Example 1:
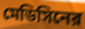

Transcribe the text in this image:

মেডিসিনের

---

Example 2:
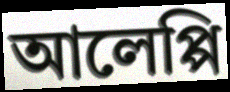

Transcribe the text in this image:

আলেপ্পি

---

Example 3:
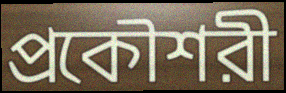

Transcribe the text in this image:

প্রকৌশরী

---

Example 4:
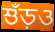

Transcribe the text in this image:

শুঁড়ও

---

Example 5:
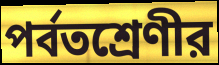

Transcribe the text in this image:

পর্বতশ্রেণীর